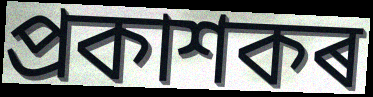
প্ৰকাশকৰ